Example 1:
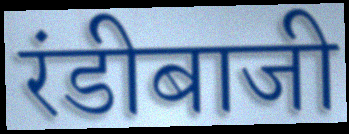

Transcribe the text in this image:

रंडीबाजी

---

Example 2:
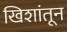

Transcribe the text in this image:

खिशांतून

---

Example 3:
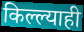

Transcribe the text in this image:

किल्ल्याही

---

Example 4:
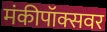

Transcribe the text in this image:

मंकीपॉक्सवर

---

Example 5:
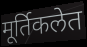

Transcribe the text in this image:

मूर्तिकलेत